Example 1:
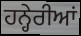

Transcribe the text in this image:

ਹਨ੍ਹੇਰੀਆਂ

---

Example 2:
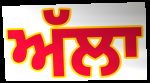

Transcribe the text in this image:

ਅੱਲਾ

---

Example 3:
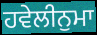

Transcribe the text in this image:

ਹਵੇਲੀਨੁਮਾ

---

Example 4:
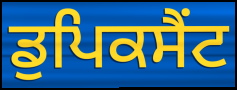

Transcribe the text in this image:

ਡੁਪਿਕਸੈਂਟ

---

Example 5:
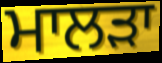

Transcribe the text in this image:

ਮਾਲੜਾ